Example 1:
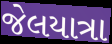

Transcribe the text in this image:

જેલયાત્રા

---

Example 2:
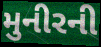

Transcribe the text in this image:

મુનીરની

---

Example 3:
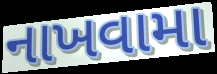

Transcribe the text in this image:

નાખવામા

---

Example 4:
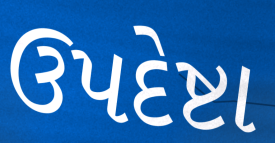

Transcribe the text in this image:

ઉપદેષ્ટા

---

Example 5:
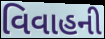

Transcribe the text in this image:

વિવાહની